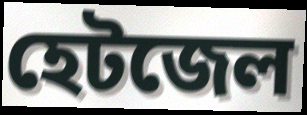
হেটজেল